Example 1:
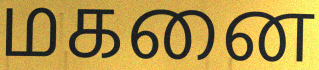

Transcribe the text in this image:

மகனை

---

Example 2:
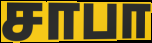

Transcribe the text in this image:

சாபா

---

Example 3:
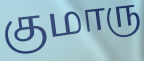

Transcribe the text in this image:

குமாரு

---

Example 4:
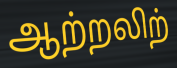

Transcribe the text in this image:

ஆற்றலிற்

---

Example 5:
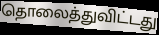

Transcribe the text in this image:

தொலைத்துவிட்டது